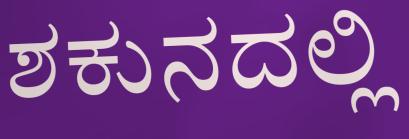
ಶಕುನದಲ್ಲಿ